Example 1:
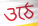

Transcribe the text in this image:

ওঠে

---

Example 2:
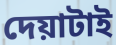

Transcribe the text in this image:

দেয়াটাই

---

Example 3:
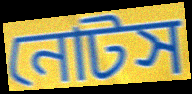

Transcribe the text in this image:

নোটস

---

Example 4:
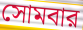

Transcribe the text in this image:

সোমবার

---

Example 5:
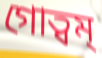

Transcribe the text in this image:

গোত্বম্